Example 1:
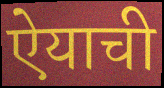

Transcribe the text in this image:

ऐयाची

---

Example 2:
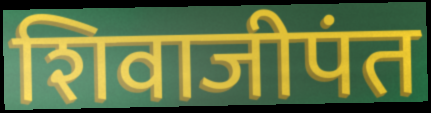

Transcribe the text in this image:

शिवाजीपंत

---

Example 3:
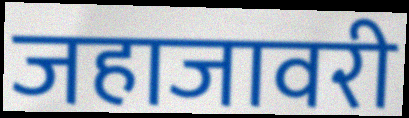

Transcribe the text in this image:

जहाजावरी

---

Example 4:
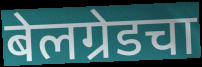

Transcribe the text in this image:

बेलग्रेडचा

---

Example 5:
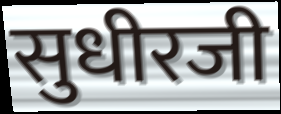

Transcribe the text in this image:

सुधीरजी